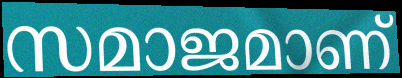
സമാജമാണ്